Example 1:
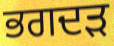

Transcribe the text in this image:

ਭਗਦੜ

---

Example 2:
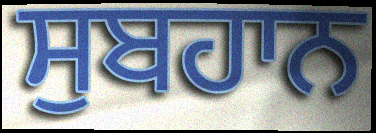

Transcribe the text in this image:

ਸੁਬਹਾਨ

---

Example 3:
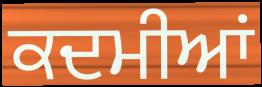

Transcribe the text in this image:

ਕਦਮੀਆਂ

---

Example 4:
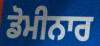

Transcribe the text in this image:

ਡੋਮੀਨਾਰ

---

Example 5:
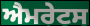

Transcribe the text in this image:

ਐਮਰੇਟਸ